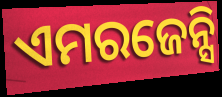
ଏମରଜେନ୍ସି